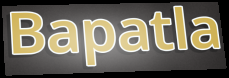
Bapatla